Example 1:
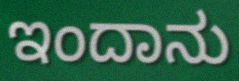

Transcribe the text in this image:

ಇಂದಾನು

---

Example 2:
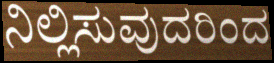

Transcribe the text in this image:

ನಿಲ್ಲಿಸುವುದರಿಂದ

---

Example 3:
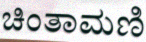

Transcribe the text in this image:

ಚಿಂತಾಮಣಿ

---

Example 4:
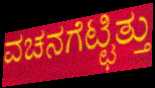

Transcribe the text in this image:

ವಚನಗೆಟ್ಟಿತ್ತು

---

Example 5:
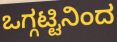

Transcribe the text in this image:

ಒಗ್ಗಟ್ಟಿನಿಂದ